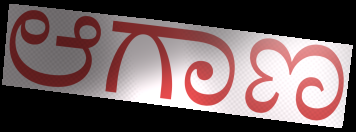
ಆಗಾಣ